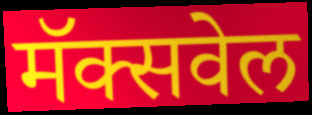
मॅक्सवेल